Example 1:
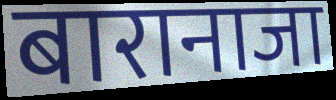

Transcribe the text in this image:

बारानाजा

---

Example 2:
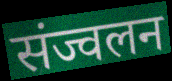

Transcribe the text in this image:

संज्वलन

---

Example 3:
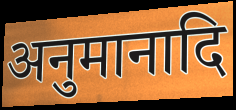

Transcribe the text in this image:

अनुमानादि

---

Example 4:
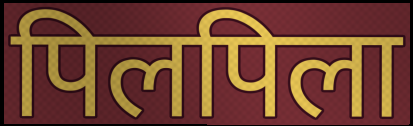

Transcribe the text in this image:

पिलपिला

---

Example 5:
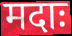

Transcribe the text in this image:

मदाः